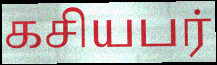
கசியபர்